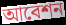
আবেশন